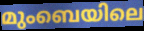
മുംബെയിലെ